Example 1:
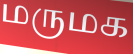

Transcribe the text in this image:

மருமக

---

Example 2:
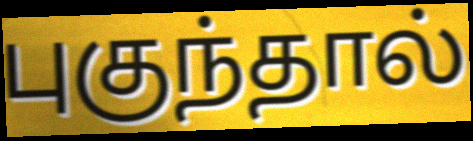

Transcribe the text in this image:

புகுந்தால்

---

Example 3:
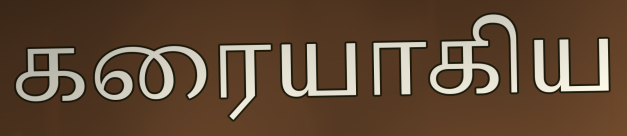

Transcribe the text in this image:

கரையாகிய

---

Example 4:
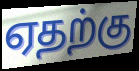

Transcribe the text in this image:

ஏதற்கு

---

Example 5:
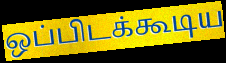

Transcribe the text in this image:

ஒப்பிடக்கூடிய